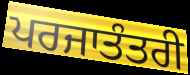
ਪਰਜਾਤੰਤਰੀ